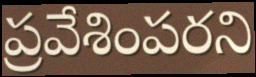
ప్రవేశింపరని